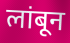
लांबून